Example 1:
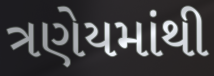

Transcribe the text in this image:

ત્રણેયમાંથી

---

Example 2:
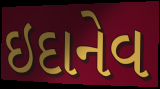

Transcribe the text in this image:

ઇદાનેવ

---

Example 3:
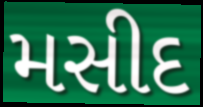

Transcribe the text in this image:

મસીદ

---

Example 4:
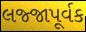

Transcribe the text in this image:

લજ્જાપૂર્વક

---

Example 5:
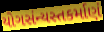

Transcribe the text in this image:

યોગસંન્યસ્તકર્માણં